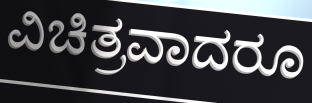
ವಿಚಿತ್ರವಾದರೂ